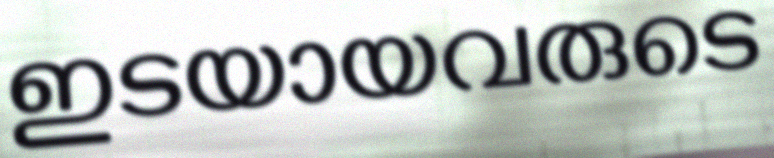
ഇടയായവരുടെ